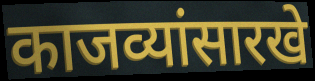
काजव्यांसारखे